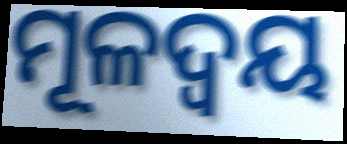
ମୂଳଦ୍ଵୟ